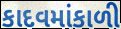
કાદવમાંકાળી